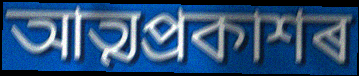
আত্মপ্ৰকাশৰ